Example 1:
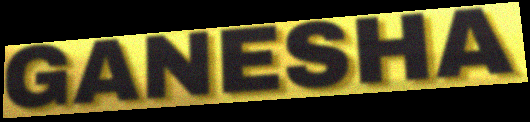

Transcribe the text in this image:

GANESHA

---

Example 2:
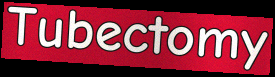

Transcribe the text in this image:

Tubectomy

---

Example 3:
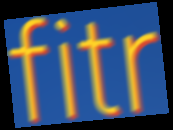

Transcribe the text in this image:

fitr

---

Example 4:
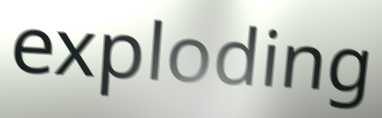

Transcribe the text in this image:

exploding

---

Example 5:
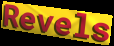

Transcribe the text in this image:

Revels